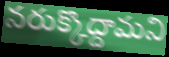
నరుక్కొద్దామని